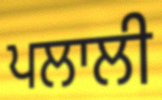
ਪਲਾਲੀ